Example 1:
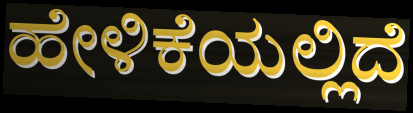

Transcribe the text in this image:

ಹೇಳಿಕೆಯಲ್ಲಿದೆ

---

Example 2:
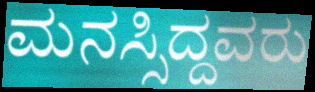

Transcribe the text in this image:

ಮನಸ್ಸಿದ್ದವರು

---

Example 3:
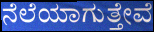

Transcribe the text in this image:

ನೆಲೆಯಾಗುತ್ತೇವೆ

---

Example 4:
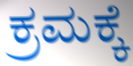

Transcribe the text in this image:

ಕ್ರಮಕ್ಕೆ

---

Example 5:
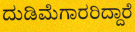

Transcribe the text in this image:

ದುಡಿಮೆಗಾರರಿದ್ದಾರೆ